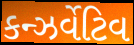
કન્ઝર્વેટિવ